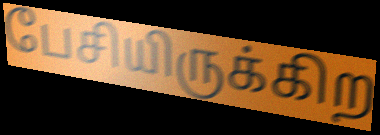
பேசியிருக்கிற